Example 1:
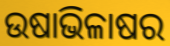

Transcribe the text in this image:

ଉଷାଭିଳାଷର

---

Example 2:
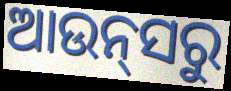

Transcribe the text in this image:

ଆଉନ୍‍ସରୁ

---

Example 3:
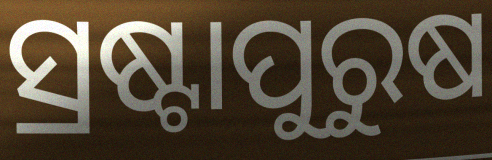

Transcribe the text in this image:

ସ୍ରଷ୍ଟାପୁରୁଷ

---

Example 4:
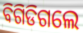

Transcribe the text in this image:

ବିଗିଡିଗଲେ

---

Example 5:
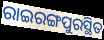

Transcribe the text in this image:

ରାଇରଙ୍ଗପୁରସ୍ଥିତ